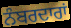
ਨੰਬਰਦਾਰਾਂ